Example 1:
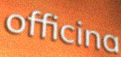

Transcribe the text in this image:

officina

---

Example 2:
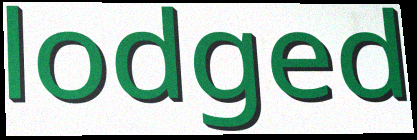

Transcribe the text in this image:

lodged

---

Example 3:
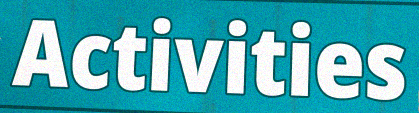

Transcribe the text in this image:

Activities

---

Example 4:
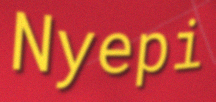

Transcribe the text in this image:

Nyepi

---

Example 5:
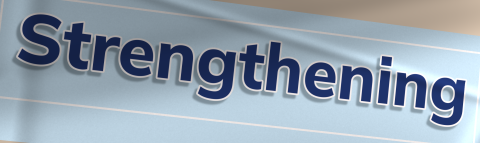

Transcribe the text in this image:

Strengthening